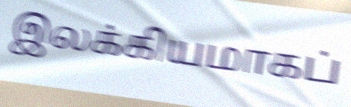
இலக்கியமாகப்